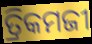
ତ୍ରିକମଜୀ